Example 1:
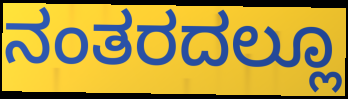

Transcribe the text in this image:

ನಂತರದಲ್ಲೂ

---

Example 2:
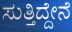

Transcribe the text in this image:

ಸುತ್ತಿದ್ದೇನೆ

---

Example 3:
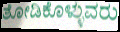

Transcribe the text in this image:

ತೋಡಿಕೊಳ್ಳುವರು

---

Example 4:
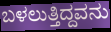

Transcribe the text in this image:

ಬಳಲುತ್ತಿದ್ದವನು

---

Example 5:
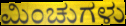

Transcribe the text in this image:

ಮಿಂಚುಗಳು